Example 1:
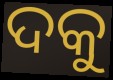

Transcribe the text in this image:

ଦକୁ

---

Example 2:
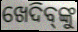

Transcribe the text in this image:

ଖେଦିବ୍‌ଙ୍କୁ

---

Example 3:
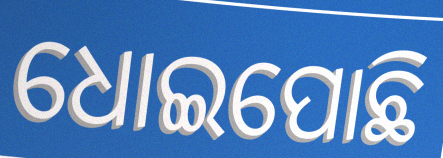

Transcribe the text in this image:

ଧୋଇପୋଛି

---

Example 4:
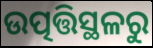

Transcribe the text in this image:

ଉତ୍ପତ୍ତିସ୍ଥଳରୁ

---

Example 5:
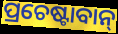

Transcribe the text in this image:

ପ୍ରଚେଷ୍ଟାବାନ୍